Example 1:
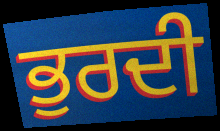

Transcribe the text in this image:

ਭੁਰਦੀ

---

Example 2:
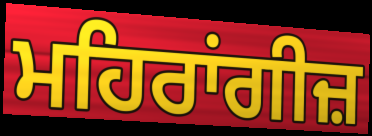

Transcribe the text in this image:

ਮਹਿਰਾਂਗੀਜ਼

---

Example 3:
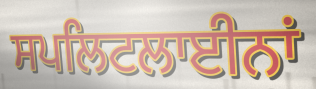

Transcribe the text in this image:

ਸਪਲਿਟਲਾਈਨਾਂ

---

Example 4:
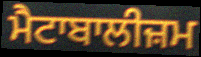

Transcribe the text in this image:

ਮੈਟਾਬਾਲੀਜ਼ਮ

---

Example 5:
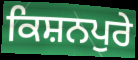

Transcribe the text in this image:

ਕਿਸ਼ਨਪੁਰੇ